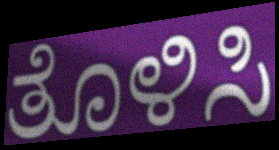
ತೊಳಿಸಿ